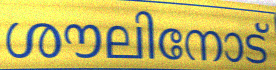
ശൗലിനോട്